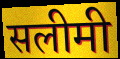
सलीमी